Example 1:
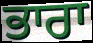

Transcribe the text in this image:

ਭਾਰਾ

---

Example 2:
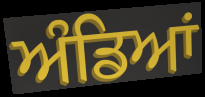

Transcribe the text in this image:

ਅੰਡਿਆਂ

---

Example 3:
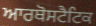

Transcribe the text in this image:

ਆਰਥੋਸਟੈਟਿਕ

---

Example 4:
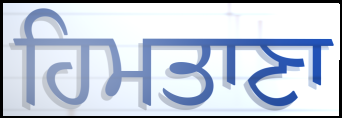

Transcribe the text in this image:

ਹਿਮਤਾਣਾ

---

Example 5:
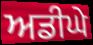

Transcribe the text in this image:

ਅਡੀਘੇ